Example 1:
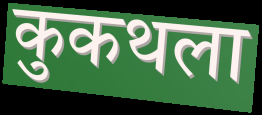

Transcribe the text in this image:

कुकथला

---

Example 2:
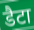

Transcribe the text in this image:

डैटा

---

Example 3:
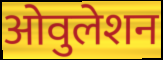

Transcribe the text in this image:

ओवुलेशन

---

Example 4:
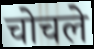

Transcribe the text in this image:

चोचले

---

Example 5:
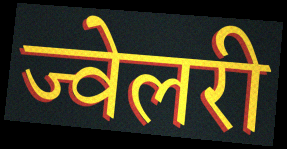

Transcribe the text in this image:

ज्वेलरी